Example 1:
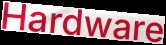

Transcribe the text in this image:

Hardware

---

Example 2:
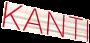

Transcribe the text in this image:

KANTI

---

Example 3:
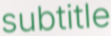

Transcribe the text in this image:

subtitle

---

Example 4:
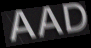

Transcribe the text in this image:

AAD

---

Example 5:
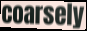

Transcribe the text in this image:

coarsely